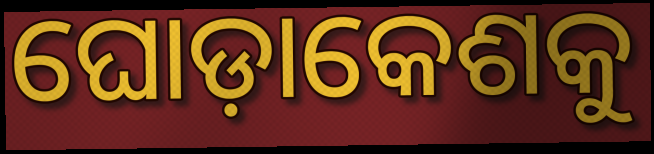
ଘୋଡ଼ାକେଶକୁ